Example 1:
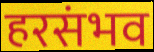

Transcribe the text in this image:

हरसंभव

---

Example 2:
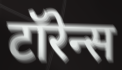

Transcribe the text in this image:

टॉरेन्स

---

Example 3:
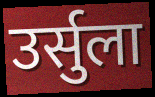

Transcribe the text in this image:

उर्सुला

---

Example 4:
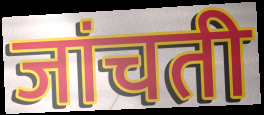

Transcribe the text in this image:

जांचती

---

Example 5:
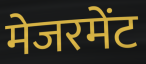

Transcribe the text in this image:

मेजरमेंट